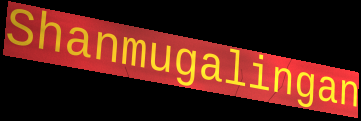
Shanmugalingan